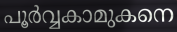
പൂർവ്വകാമുകനെ